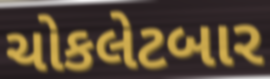
ચોકલેટબાર